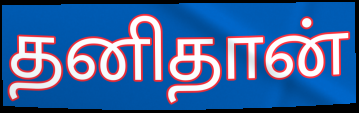
தனிதான்